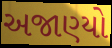
અજાણ્યો